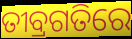
ତୀବ୍ରଗତିରେ